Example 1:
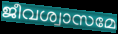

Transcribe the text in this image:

ജീവശ്വാസമേ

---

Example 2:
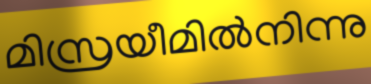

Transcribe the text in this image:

മിസ്രയീമിൽനിന്നു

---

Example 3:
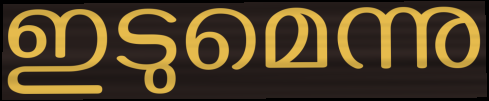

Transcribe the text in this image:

ഇടുമെന്നു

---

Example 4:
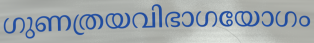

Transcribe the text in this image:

ഗുണത്രയവിഭാഗയോഗം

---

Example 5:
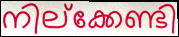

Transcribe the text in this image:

നില്ക്കേണ്ടി